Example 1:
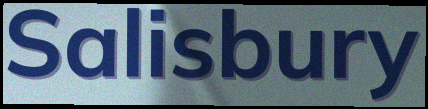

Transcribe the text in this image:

Salisbury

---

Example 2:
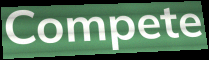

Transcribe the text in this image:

Compete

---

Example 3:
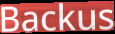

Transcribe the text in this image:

Backus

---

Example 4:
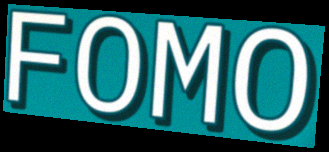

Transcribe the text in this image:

FOMO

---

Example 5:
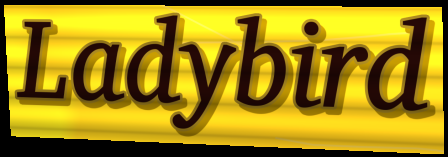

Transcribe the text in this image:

Ladybird